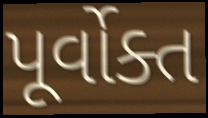
પૂર્વોક્ત